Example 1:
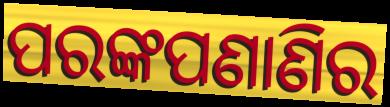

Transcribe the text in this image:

ପରଙ୍କପଣାଣିର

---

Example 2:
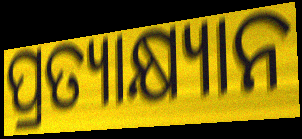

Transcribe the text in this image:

ପ୍ରତ୍ୟାକ୍ଷ୍ୟାନ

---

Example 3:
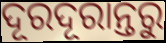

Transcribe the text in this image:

ଦୂରଦୂରାନ୍ତରୁ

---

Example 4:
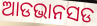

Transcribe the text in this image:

ଆଡଭାନସଡ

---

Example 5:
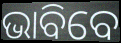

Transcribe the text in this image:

ଭାବିବେ